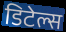
डिटेल्स